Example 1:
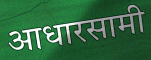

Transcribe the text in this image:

आधारसामी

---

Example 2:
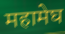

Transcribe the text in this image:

महामेघ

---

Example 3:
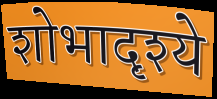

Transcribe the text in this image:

शोभादृश्ये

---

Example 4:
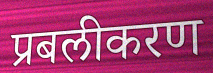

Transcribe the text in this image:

प्रबलीकरण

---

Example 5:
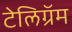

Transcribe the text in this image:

टेलिग्रॅम